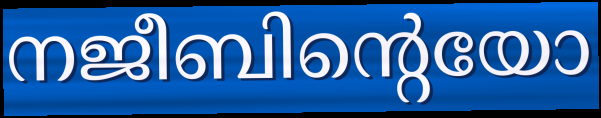
നജീബിന്റെയോ